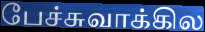
பேச்சுவாக்கில